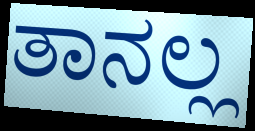
ತಾನಲ್ಲ